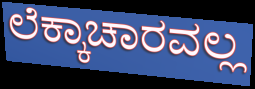
ಲೆಕ್ಕಾಚಾರವಲ್ಲ